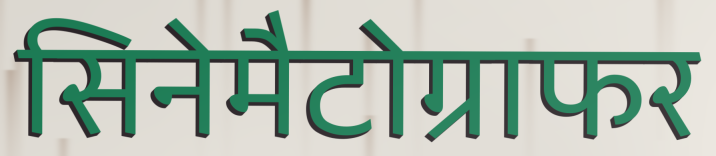
सिनेमैटोग्राफर